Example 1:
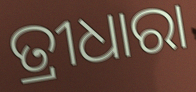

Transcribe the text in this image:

ତ୍ରୀଧାରା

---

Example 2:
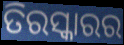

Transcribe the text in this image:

ତିରସ୍କାରର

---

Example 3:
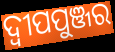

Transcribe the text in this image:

ଦ୍ଵୀପପୁଞ୍ଜର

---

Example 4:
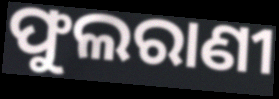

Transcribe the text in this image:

ଫୁଲରାଣୀ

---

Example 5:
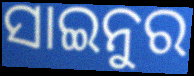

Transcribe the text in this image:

ସାଇନୁର